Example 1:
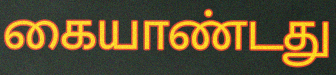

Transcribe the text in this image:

கையாண்டது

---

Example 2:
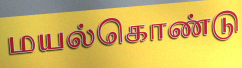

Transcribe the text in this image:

மயல்கொண்டு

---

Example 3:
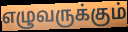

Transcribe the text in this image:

எழுவருக்கும்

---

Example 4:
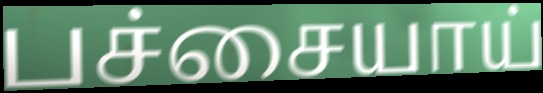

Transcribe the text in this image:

பச்சையாய்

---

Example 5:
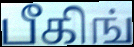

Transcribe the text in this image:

பீகிங்